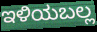
ಇಳಿಯಬಲ್ಲ